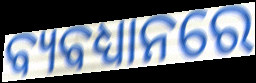
ବ୍ୟବଧ୍ୟାନରେ